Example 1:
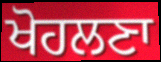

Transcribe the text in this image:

ਖੋਹਲਣਾ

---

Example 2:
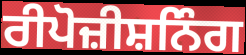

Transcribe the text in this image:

ਰੀਪੋਜ਼ੀਸ਼ਨਿੰਗ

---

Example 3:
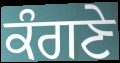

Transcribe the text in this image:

ਕੰਗਣੇ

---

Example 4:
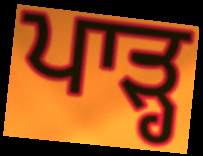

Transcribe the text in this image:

ਪਾੜ੍ਹ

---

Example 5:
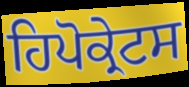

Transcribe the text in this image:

ਹਿਪੋਕ੍ਰੇਟਸ